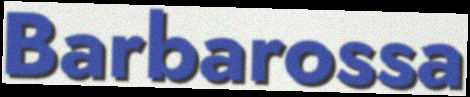
Barbarossa